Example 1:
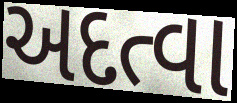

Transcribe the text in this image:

અદત્વા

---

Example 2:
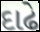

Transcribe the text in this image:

દાઢે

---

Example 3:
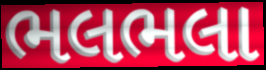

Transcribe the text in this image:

ભલભલા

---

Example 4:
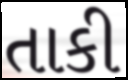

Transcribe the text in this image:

તાકી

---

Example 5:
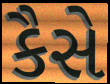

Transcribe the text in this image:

કૈસે